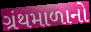
ગ્રંથમાળાનો